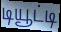
டியூட்டி